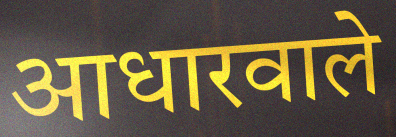
आधारवाले